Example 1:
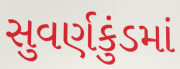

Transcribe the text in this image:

સુવર્ણકુંડમાં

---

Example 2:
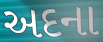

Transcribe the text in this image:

અદના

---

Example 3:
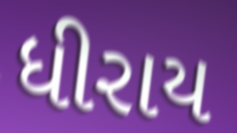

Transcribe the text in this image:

ધીરાય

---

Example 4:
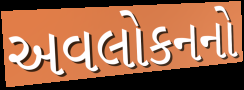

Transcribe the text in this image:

અવલોકનનો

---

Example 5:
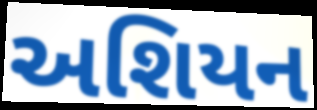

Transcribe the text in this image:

અશિયન